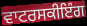
ਵਾਟਰਸਕੀਇੰਗ